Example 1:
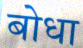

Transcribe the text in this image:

बोधा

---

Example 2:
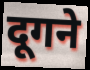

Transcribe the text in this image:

दूगने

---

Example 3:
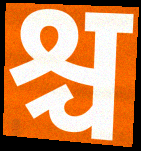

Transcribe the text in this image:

श्च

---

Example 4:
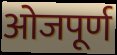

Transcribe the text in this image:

ओजपूर्ण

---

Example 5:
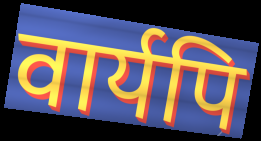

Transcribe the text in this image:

वार्यपि